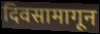
दिवसामागून